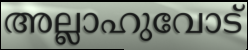
അല്ലാഹുവോട്